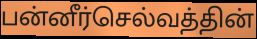
பன்னீர்செல்வத்தின்